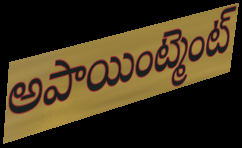
అపాయింట్మెంట్